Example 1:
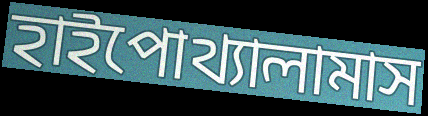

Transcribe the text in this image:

হাইপোথ্যালামাস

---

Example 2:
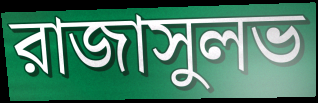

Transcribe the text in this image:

রাজাসুলভ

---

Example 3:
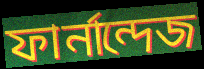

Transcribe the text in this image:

ফার্নান্দেজ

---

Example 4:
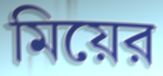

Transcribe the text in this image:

মিয়ের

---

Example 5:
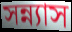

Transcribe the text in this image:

সন্ন্যাস